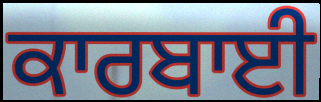
ਕਾਰਬਾਈ